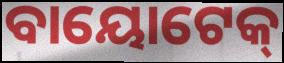
ବାୟୋଟେକ୍